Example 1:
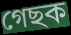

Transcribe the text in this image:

গেছক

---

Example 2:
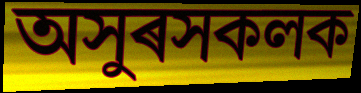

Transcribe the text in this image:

অসুৰসকলক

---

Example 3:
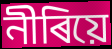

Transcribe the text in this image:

নীৰিয়ে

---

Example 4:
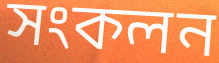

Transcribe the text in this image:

সংকলন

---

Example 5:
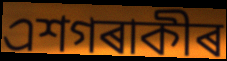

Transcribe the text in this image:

এশগৰাকীৰ